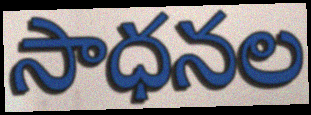
సాధనల